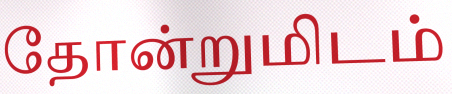
தோன்றுமிடம்